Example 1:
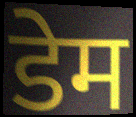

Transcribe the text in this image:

डेम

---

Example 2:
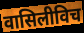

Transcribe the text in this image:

वासिलीविच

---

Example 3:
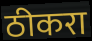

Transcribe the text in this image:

ठीकरा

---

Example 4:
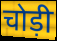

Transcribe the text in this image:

चोड़ी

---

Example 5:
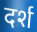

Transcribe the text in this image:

दर्श